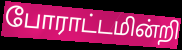
போராட்டமின்றி